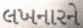
લખનારને